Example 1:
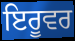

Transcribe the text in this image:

ਇਰੂਵਰ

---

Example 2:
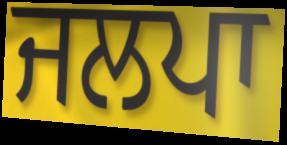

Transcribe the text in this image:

ਜਲਪਾ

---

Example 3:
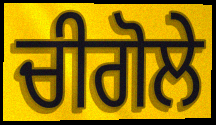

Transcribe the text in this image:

ਚੀਗੋਲੇ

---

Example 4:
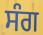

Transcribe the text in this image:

ਸੰਗ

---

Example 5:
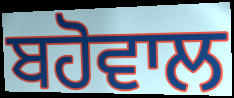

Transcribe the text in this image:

ਬਹੋਵਾਲ